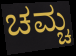
ಚಮ್ಚ